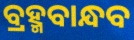
ବ୍ରହ୍ମବାନ୍ଧବ